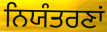
ਨਿਯੰਤਰਣਾਂ